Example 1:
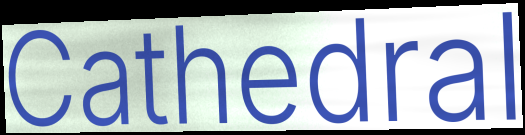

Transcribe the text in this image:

Cathedral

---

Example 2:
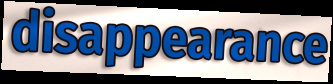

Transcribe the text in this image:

disappearance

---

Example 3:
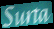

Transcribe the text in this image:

Surta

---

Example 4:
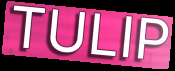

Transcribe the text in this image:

TULIP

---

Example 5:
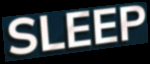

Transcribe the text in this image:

SLEEP